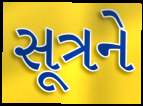
સૂત્રને